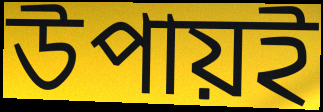
উপায়ই